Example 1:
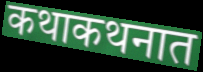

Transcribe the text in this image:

कथाकथनात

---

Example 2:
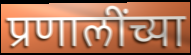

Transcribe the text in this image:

प्रणालींच्या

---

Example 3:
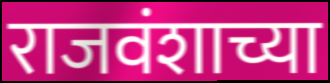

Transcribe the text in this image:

राजवंशाच्या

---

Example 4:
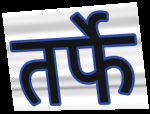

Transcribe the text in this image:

तर्फे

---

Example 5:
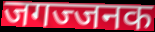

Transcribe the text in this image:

जगज्जनक